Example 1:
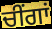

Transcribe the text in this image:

ਚੀਂਗਾਂ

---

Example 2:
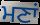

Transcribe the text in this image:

ਮਣਾਂ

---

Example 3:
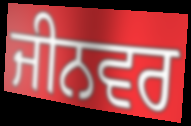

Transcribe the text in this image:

ਜੀਨਵਰ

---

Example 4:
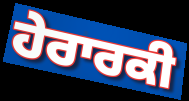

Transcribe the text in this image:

ਹੇਰਾਰਕੀ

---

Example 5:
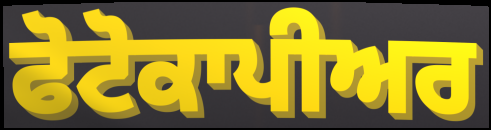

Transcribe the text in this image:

ਫੋਟੋਕਾਪੀਅਰ